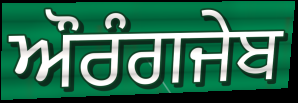
ਔਰੰਗਜੇਬ